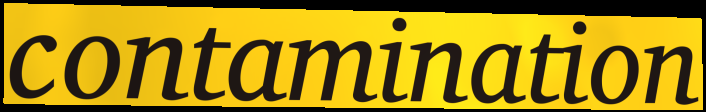
contamination